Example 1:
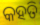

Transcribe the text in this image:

କହତି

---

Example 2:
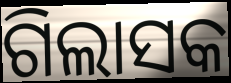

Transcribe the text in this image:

ଗିଲାସକ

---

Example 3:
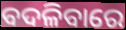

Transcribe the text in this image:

ବଦଳିବାରେ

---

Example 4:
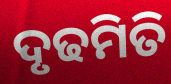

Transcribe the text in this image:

ଦୃଢମିତି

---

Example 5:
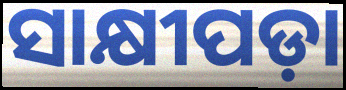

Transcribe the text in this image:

ସାକ୍ଷୀପଡ଼ା